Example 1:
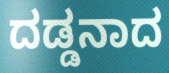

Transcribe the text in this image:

ದಡ್ಡನಾದ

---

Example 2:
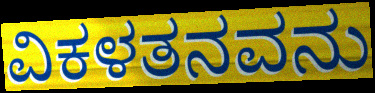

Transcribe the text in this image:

ವಿಕಳತನವನು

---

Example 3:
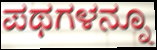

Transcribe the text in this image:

ಪಥಗಳನ್ನೂ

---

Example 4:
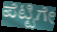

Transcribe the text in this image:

ಪೆಟ್ಟಿಗೇ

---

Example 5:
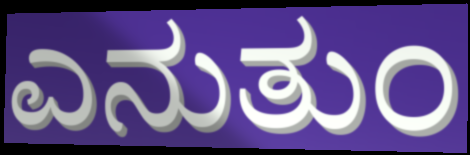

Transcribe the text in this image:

ಎನುತುಂ